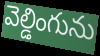
వెల్డింగును